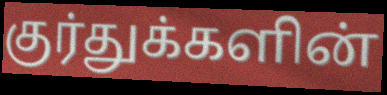
குர்துக்களின்